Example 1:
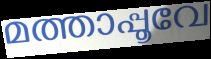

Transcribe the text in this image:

മത്താപ്പൂവേ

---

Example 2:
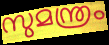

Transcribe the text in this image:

സുമന്ത്രം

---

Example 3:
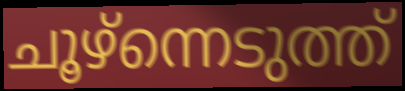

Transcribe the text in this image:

ചൂഴ്ന്നെടുത്ത്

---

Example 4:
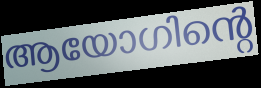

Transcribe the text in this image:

ആയോഗിന്റെ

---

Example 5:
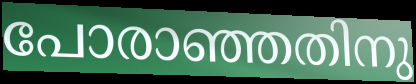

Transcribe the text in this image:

പോരാഞ്ഞതിനു